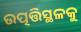
ଉତ୍ପତ୍ତିସ୍ଥଳକୁ